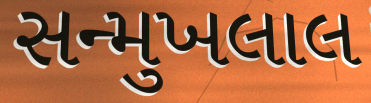
સન્મુખલાલ